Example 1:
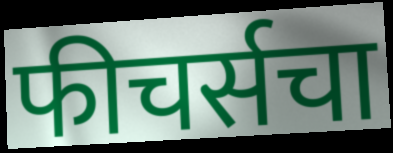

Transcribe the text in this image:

फीचर्सचा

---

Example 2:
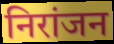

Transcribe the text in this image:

निरांजन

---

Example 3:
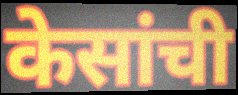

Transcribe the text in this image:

केसांची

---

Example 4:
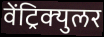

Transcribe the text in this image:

वेंट्रिक्युलर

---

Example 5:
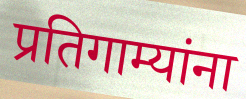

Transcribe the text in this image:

प्रतिगाम्यांना